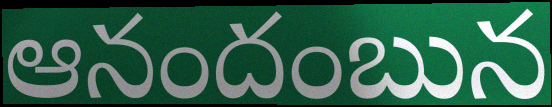
ఆనందంబున